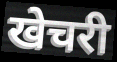
खेचरी